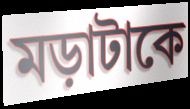
মড়াটাকে